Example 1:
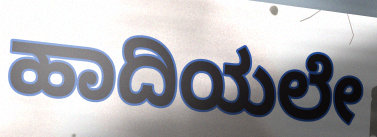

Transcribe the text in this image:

ಹಾದಿಯಲೇ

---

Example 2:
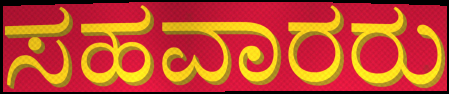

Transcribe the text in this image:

ಸಹವಾರರು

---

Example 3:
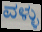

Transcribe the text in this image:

ವಳ್ಳು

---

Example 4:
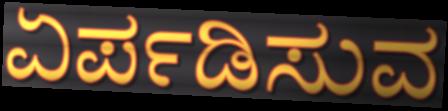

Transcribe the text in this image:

ಏರ್ಪಡಿಸುವ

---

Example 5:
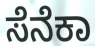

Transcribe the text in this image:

ಸೆನೆಕಾ